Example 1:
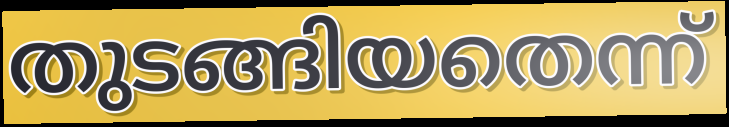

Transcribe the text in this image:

തുടങ്ങിയതെന്ന്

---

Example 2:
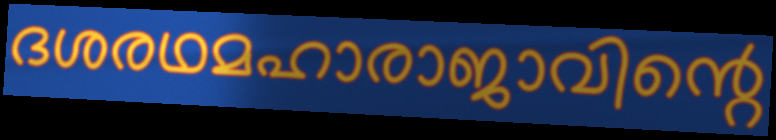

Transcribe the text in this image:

ദശരഥമഹാരാജാവിന്റെ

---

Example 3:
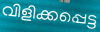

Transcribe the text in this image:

വിളിക്കപ്പെട്ട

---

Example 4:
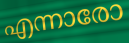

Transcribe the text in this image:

എന്നാരോ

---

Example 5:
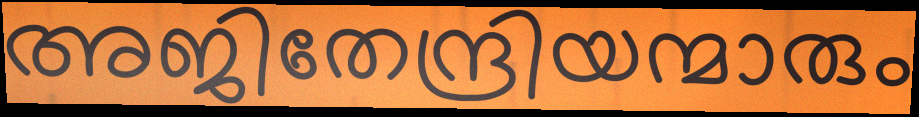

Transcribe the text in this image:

അജിതേന്ദ്രിയന്മാരും